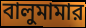
বালুমামার